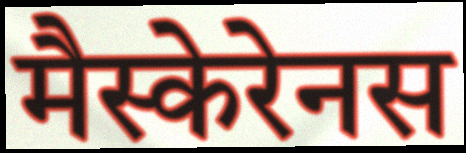
मैस्केरेनस